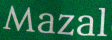
Mazal